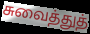
சுவைத்துத்